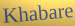
Khabare